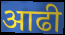
आढी